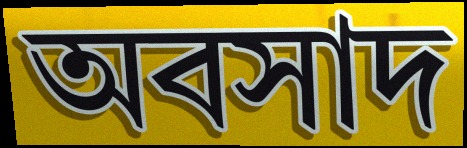
অবসাদ